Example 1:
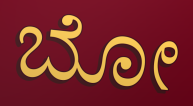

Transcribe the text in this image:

ಬೋ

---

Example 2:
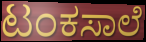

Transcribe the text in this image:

ಟಂಕಸಾಲೆ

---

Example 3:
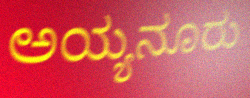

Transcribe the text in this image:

ಅಯ್ಯನೂರು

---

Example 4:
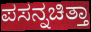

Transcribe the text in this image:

ಪಸನ್ನಚಿತ್ತಾ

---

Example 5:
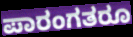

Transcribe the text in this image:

ಪಾರಂಗತರೂ